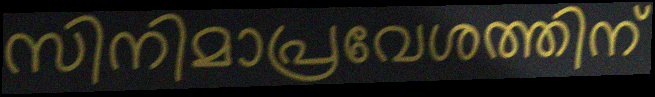
സിനിമാപ്രവേശത്തിന്